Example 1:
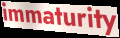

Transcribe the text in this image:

immaturity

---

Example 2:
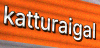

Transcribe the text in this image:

katturaigal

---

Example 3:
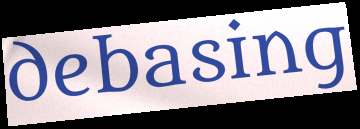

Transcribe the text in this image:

debasing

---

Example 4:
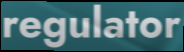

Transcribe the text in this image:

regulator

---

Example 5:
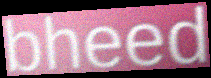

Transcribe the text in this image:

bheed